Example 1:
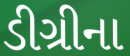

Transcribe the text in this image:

ડીગ્રીના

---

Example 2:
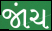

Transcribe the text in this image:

જાંચ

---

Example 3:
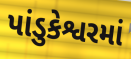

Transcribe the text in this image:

પાંડુકેશ્વરમાં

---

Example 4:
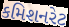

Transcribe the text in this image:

કમિશનરેટ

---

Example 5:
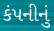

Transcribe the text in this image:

કંપનીનું